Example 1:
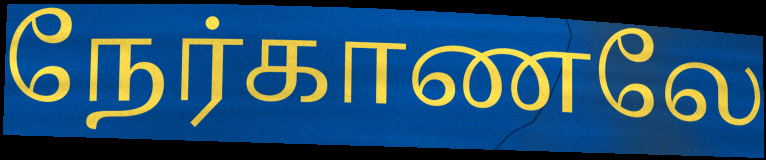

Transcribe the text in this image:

நேர்காணலே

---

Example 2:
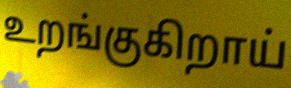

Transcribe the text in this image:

உறங்குகிறாய்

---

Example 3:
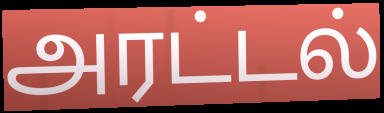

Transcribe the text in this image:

அரட்டல்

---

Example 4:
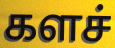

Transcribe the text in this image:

களச்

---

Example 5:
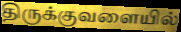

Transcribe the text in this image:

திருக்குவளையில்